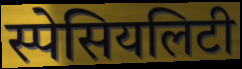
स्पेसियलिटी